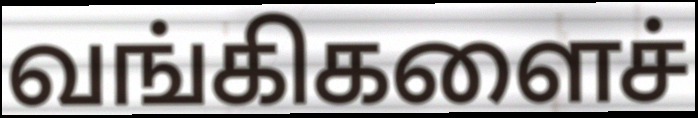
வங்கிகளைச்